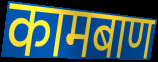
कामबाण